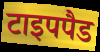
टाइपपैड